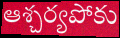
ఆశ్చర్యపోకు